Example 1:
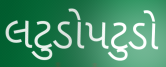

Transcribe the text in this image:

લટુડોપટુડો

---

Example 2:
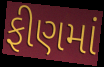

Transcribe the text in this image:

ફીણમાં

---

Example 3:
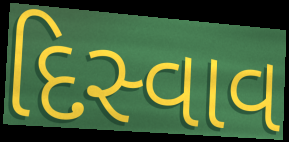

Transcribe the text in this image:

દિસ્વાવ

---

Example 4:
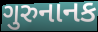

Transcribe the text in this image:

ગુરુનાનક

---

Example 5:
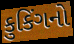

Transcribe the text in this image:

કુકિંગનો